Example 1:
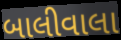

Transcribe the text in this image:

બાલીવાલા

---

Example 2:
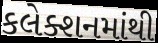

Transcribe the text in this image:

કલેક્શનમાંથી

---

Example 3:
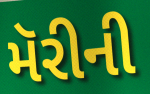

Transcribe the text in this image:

મૅરીની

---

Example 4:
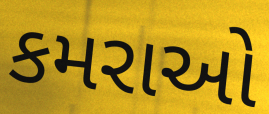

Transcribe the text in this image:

કમરાઓ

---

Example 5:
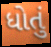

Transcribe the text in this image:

ધોતું